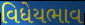
વિધેયભાવ